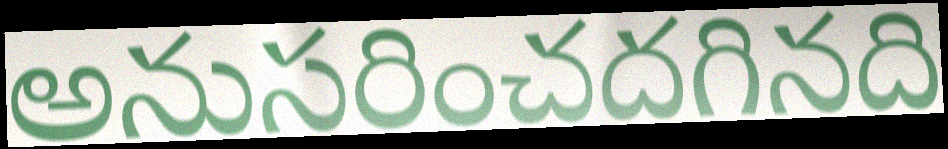
అనుసరించదగినది